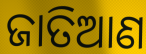
ଜାତିଆଣ